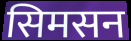
सिमसन